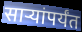
साऱ्यांपर्यंत